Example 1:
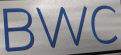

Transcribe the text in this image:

BWC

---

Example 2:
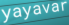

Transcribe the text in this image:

yayavar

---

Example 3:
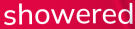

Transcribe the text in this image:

showered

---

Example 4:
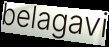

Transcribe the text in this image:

belagavi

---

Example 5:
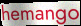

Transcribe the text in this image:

hemango